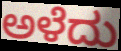
ಅಳೆದು